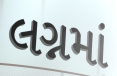
લગ્નમાં